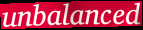
unbalanced